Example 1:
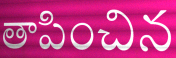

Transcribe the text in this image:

తాపించిన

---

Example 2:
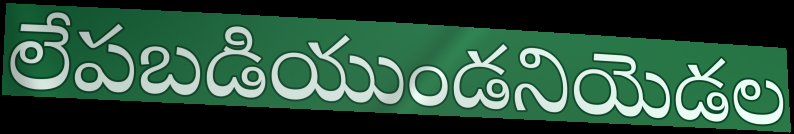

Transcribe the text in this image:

లేపబడియుండనియెడల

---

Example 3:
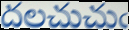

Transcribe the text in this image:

దలచుచుఁ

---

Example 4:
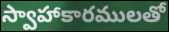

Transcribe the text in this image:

స్వాహాకారములతో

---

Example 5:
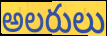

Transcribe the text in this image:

అలరులు